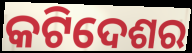
କଟିଦେଶର